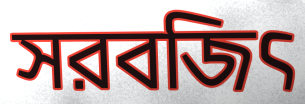
সরবজিৎ